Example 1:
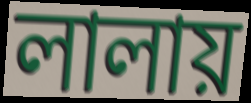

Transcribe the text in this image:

লালায়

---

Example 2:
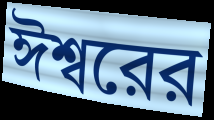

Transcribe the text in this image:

ঈশ্বরের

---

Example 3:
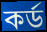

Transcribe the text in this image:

কর্ড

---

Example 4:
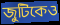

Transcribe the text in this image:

জুটিকেও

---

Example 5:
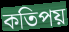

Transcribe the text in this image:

কতিপয়